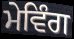
ਮੇਵਿੰਗ